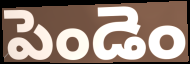
పెండెం